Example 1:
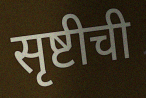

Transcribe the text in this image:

सृष्टीची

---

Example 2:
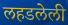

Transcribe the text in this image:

लहडलेली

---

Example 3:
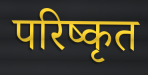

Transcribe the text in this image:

परिष्कृत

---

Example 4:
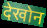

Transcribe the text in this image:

देखोन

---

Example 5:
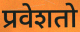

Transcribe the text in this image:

प्रवेशतो